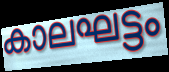
കാലഘട്ടം